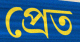
প্রেত